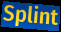
Splint